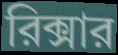
রিক্সার